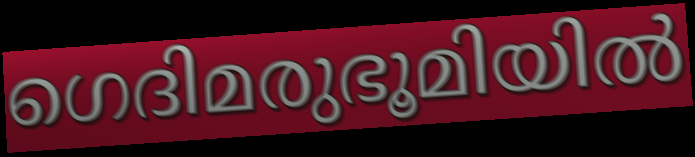
ഗെദിമരുഭൂമിയിൽ